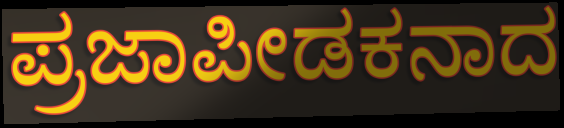
ಪ್ರಜಾಪೀಡಕನಾದ